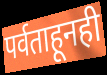
पर्वताहूनही